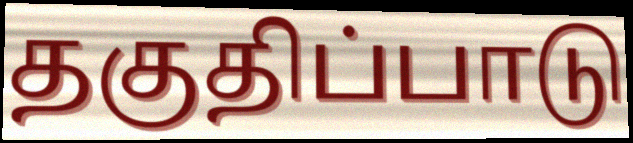
தகுதிப்பாடு